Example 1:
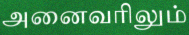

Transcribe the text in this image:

அனைவரிலும்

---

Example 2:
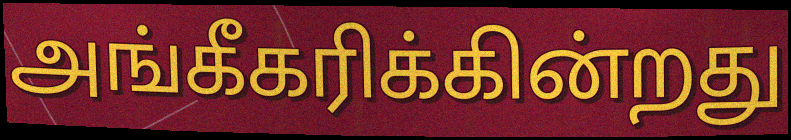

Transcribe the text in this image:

அங்கீகரிக்கின்றது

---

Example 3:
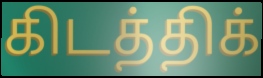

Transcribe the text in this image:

கிடத்திக்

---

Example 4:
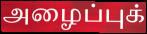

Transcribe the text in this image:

அழைப்புக்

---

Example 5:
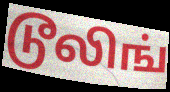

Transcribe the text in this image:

டூலிங்